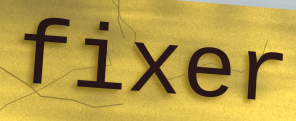
fixer